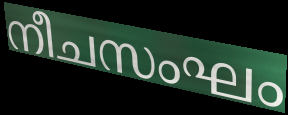
നീചസംഘം